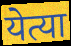
येत्या